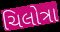
ચિલોત્રા